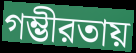
গম্ভীরতায়